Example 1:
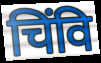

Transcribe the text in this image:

चिंवि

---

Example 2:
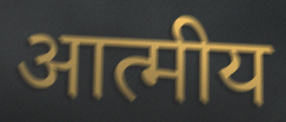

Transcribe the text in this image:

आत्मीय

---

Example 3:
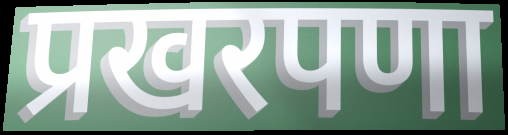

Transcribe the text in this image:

प्रखरपणा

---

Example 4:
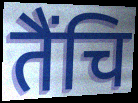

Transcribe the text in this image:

तैंचि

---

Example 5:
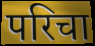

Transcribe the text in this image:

परिचा